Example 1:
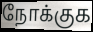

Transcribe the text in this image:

நோக்குக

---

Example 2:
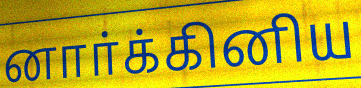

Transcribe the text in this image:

னார்க்கினிய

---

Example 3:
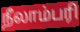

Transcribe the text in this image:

நீலாம்பரி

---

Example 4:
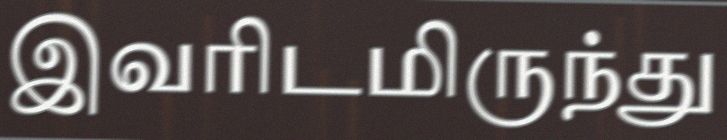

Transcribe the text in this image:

இவரிடமிருந்து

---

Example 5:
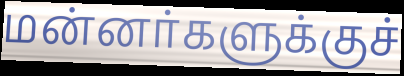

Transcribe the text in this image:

மன்னர்களுக்குச்